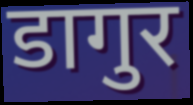
डागुर